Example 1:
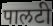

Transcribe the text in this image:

पालटी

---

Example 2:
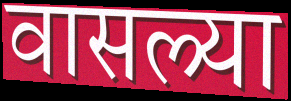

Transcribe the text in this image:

वासल्या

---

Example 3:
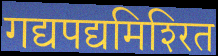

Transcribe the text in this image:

गद्यपद्यमिश्रित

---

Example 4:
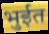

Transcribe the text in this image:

भुईत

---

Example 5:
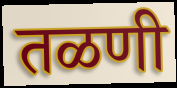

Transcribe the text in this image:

तळणी